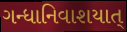
ગન્ધાનિવાશયાત્